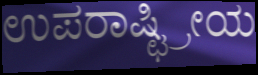
ಉಪರಾಷ್ಟ್ರೀಯ